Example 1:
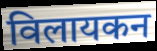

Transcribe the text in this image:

विलायकन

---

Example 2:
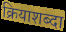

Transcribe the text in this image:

क्रियाशब्दा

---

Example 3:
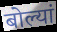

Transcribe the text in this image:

बोल्यां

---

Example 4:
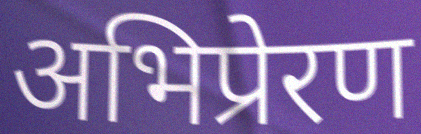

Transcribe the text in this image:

अभिप्रेरण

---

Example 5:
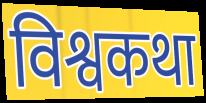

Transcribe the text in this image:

विश्वकथा